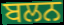
ਬਲਨ